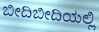
ಬೀದಿಬೀದಿಯಲ್ಲಿ